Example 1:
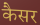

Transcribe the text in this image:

कैसर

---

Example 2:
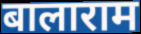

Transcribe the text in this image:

बालाराम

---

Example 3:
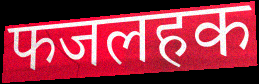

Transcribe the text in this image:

फजलहक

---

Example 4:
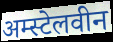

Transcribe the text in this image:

अम्स्टेलवीन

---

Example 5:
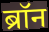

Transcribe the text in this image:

ब्रॉन